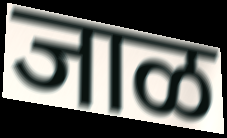
जाळ